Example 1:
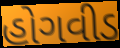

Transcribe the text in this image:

હોગવીડ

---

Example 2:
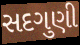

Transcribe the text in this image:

સદગુણી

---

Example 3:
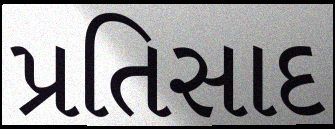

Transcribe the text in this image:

પ્રતિસાદ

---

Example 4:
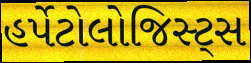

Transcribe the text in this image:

હર્પેટોલોજિસ્ટ્સ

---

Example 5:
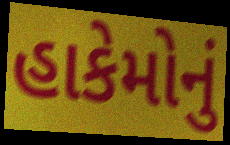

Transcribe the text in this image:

હાકેમોનું